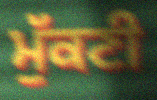
ਮੁੱਕਣੀ